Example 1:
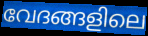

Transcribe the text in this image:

വേദങ്ങളിലെ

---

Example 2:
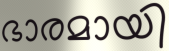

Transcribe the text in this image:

ഭാരമായി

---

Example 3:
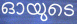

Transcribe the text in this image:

ഓയുടെ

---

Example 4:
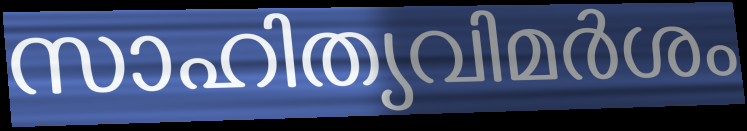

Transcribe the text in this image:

സാഹിത്യവിമർശം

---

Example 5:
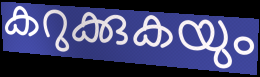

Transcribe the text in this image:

കറുക്കുകയും